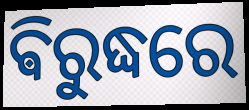
ଵିରୁଦ୍ଧରେ